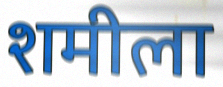
शमीला